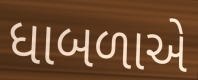
ધાબળાએ